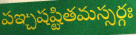
పఞ్చషష్టితమస్సర్గః